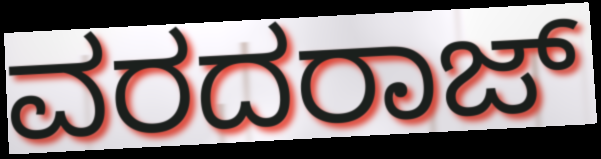
ವರದರಾಜ್